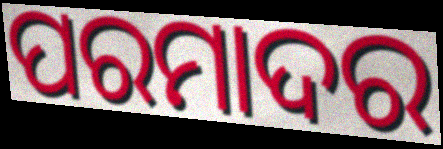
ପରମାଦର